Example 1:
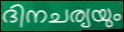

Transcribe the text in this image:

ദിനചര്യയും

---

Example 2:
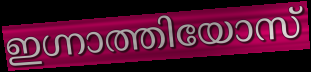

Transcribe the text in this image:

ഇഗ്നാത്തിയോസ്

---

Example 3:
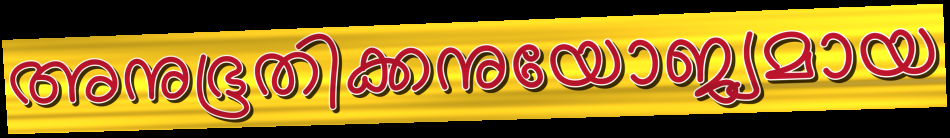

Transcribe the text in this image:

അനുഭൂതിക്കനുയോജ്യമായ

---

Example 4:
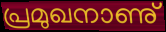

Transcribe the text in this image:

പ്രമുഖനാണു്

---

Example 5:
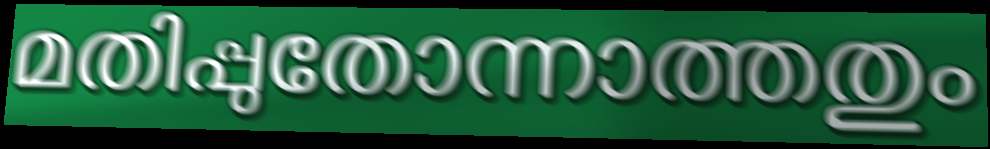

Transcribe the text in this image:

മതിപ്പുതോന്നാത്തതും